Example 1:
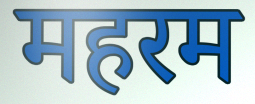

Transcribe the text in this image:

महरम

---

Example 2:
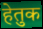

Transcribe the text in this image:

हेतुक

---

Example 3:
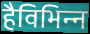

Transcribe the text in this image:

हैविभिन्न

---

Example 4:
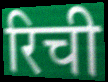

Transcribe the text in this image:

रिची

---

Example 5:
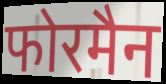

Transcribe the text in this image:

फोरमैन